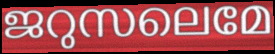
ജറുസലെമേ